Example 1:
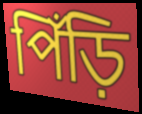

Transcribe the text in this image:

পিঁড়ি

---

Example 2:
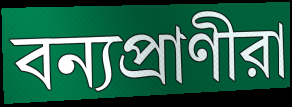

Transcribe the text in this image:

বন্যপ্রাণীরা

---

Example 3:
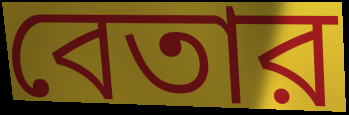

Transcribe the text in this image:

বেতার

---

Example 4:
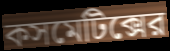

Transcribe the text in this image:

কসমেটিক্সের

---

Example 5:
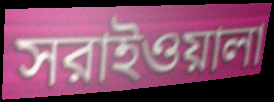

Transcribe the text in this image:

সরাইওয়ালা